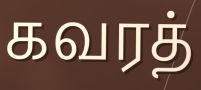
கவரத்